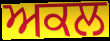
ਅਕਲ